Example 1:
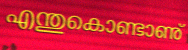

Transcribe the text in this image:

എന്തുകൊണ്ടാണു്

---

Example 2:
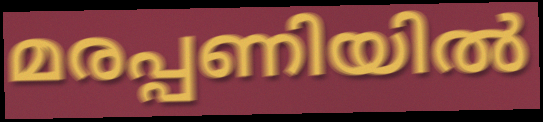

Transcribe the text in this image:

മരപ്പണിയിൽ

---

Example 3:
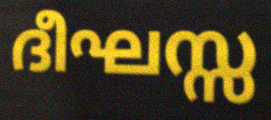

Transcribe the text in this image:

ദീഘസ്സ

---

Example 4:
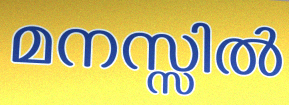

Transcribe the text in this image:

മനസ്സിൽ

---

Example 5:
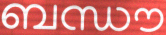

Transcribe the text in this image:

ബന്ധൗ